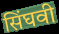
सिंघवी